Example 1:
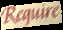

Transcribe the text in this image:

Require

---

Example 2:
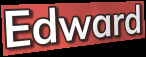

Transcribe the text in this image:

Edward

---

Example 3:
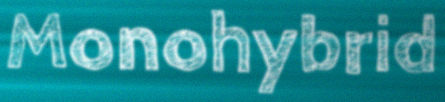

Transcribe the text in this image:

Monohybrid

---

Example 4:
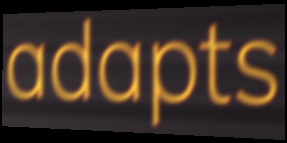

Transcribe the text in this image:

adapts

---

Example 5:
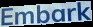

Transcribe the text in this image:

Embark